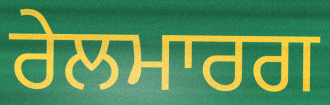
ਰੇਲਮਾਰਗ